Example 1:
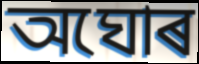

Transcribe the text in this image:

অঘোৰ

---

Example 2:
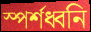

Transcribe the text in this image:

স্পৰ্শধ্বনি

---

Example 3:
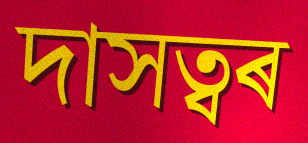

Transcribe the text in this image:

দাসত্বৰ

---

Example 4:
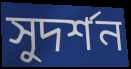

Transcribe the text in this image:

সুদৰ্শন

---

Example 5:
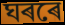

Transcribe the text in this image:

ঘৰৰে